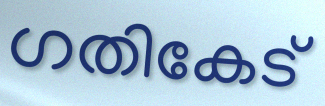
ഗതികേട്